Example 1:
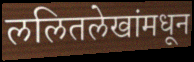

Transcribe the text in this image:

ललितलेखांमधून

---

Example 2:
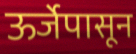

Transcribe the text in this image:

ऊर्जेपासून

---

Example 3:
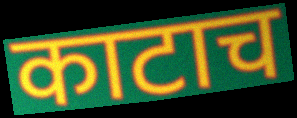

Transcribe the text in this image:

काटाच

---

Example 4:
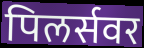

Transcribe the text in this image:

पिलर्सवर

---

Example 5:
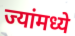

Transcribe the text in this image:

ज्यांमध्ये